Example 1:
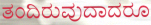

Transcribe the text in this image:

ತಂದಿರುವುದಾದರೂ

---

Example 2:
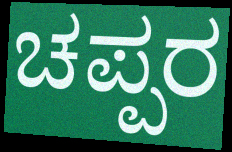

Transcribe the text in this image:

ಚಪ್ಪರ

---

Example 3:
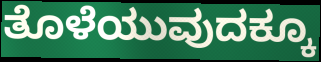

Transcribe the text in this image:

ತೊಳೆಯುವುದಕ್ಕೂ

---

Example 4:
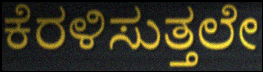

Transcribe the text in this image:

ಕೆರಳಿಸುತ್ತಲೇ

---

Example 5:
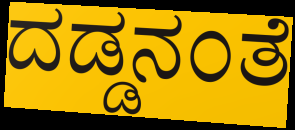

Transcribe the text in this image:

ದಡ್ಡನಂತೆ